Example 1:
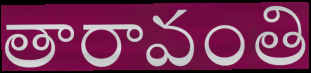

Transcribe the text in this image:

తారావంతి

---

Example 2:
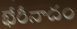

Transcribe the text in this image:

భేరీనాదం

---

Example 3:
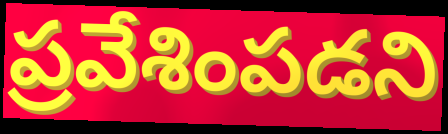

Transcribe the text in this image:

ప్రవేశింపడని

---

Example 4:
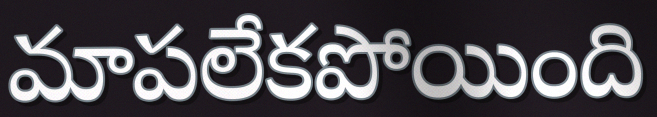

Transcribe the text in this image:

మాపలేకపోయింది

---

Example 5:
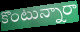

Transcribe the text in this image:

కొంటున్నారా